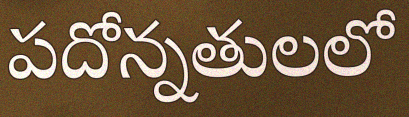
పదోన్నతులలో